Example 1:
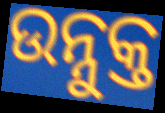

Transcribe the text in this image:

ଉନ୍ନୁକ୍ତ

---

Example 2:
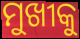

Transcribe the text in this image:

ମୁଖୀକୁ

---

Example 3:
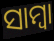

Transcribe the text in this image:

ସାମ୍ବା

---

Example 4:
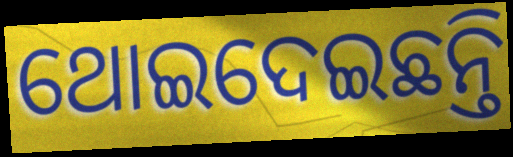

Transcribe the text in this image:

ଥୋଇଦେଇଛନ୍ତି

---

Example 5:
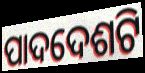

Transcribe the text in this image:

ପାଦଦେଶଟି